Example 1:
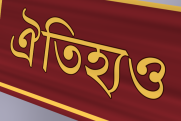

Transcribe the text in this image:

ঐতিহ্যও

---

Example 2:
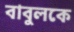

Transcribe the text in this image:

বাবুলকে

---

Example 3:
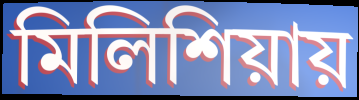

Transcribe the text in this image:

মিলিশিয়ায়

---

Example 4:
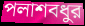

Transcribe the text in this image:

পলাশবধুর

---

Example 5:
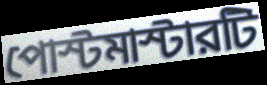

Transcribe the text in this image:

পোস্টমাস্টারটি